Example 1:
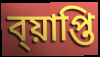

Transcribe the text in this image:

ব্য়াপ্তি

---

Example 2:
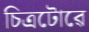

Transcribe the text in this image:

চিত্ৰটোৱে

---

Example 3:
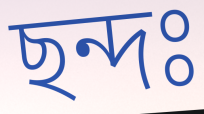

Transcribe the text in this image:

ছন্দঃ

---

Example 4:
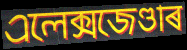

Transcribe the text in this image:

এলেক্সজেণ্ডাৰ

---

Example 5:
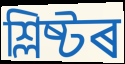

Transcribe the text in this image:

শ্লিষ্টৰ